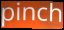
pinch